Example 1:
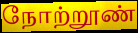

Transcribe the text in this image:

நோற்றூண்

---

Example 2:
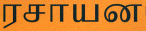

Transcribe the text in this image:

ரசாயன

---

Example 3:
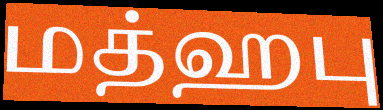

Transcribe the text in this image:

மத்ஹபு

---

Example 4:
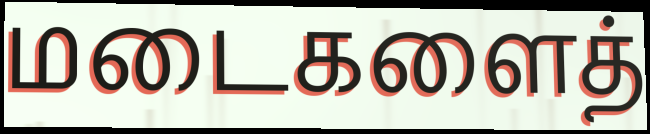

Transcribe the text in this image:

மடைகளைத்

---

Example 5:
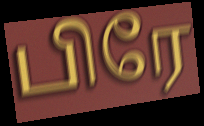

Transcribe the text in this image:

பிரே